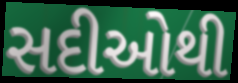
સદીઓથી